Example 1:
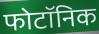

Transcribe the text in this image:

फोटॉनिक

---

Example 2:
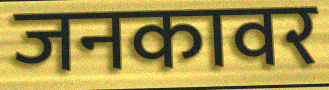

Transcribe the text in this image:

जनकावर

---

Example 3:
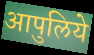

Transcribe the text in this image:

आपुलिये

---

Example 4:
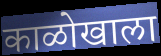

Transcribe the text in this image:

काळोखाला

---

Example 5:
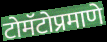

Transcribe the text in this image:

टोमॅटोप्रमाणे